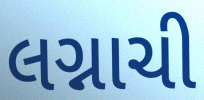
લગ્નાચી